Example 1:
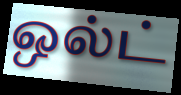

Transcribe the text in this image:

ஒல்ட்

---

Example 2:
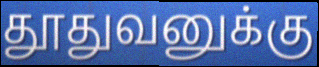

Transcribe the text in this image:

தூதுவனுக்கு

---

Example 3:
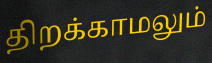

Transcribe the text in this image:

திறக்காமலும்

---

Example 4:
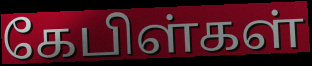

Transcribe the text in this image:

கேபிள்கள்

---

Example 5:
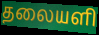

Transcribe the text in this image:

தலையளி